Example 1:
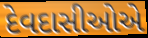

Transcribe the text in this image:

દેવદાસીઓએ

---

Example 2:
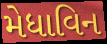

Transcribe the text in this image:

મેધાવિન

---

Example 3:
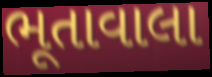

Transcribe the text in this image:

ભૂતાવાલા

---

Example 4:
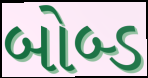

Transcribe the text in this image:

બોબ્ડ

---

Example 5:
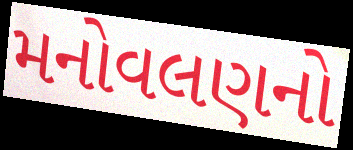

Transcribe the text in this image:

મનોવલણનો